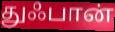
துஃபான்